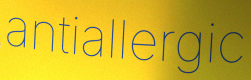
antiallergic